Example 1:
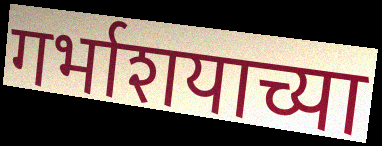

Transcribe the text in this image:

गर्भाशयाच्या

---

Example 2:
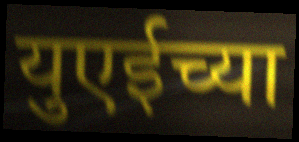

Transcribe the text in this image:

युएईच्या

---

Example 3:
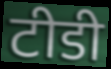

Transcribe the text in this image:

टीडी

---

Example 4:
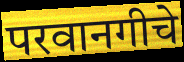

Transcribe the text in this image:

परवानगीचे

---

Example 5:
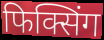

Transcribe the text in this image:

फिक्सिंग